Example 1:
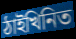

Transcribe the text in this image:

ঠাইখিনিত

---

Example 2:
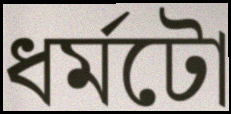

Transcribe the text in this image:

ধৰ্মটো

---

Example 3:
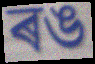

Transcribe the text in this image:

ৰঙ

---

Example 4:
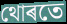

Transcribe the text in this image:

থোৰতে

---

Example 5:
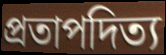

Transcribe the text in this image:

প্ৰতাপদিত্য